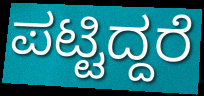
ಪಟ್ಟಿದ್ದರೆ